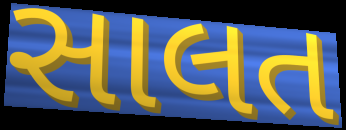
સાલત